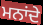
ਮਨਾਂਦੇ